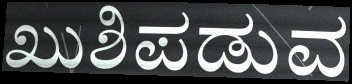
ಖುಶಿಪಡುವ